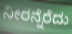
ನೀರನ್ನೆರೆದು